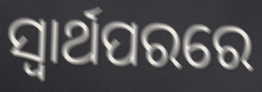
ସ୍ୱାର୍ଥପରରେ